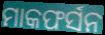
ମାକଫର୍ସନ